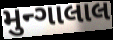
મુન્ગાલાલ